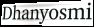
Dhanyosmi